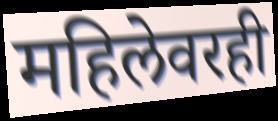
महिलेवरही